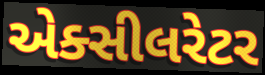
એક્સીલરેટર